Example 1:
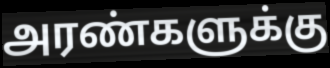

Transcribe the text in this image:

அரண்களுக்கு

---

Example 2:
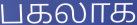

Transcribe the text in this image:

பகலாக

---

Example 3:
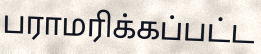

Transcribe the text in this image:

பராமரிக்கப்பட்ட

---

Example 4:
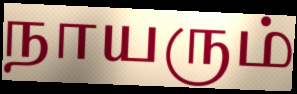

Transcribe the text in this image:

நாயரும்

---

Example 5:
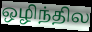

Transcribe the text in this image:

ஒழிந்தில